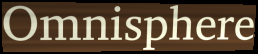
Omnisphere